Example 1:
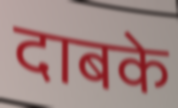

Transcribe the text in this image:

दाबके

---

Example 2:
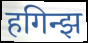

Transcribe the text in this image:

हगिन्झ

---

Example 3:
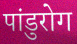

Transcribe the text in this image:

पांडुरोग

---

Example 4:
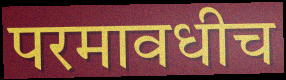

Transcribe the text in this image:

परमावधीच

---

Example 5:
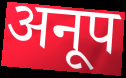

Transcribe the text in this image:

अनूप